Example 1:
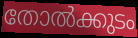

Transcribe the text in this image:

തോൽക്കുടം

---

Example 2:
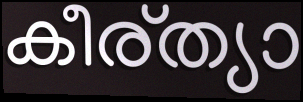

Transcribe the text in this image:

കീര്ത്യാ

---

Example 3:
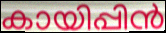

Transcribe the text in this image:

കായിപ്പിൻ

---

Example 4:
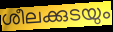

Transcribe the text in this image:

ശീലക്കുടയും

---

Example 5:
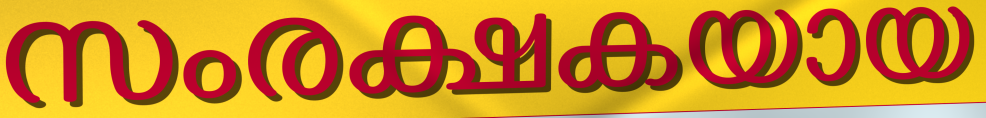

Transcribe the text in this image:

സംരക്ഷകയായ